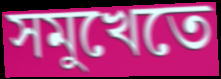
সমুখেতে